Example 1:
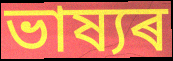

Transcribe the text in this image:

ভাষ্যৰ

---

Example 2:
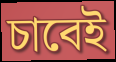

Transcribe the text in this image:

চাবেই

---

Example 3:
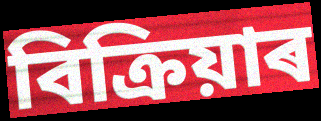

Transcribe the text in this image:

বিক্ৰিয়াৰ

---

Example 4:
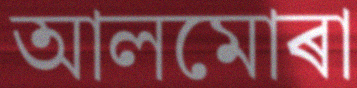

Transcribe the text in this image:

আলমোৰা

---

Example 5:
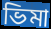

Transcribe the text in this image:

ভিমা